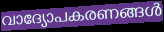
വാദ്യോപകരണങ്ങൾ